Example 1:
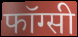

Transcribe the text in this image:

फॉग्सी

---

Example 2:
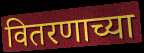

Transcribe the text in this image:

वितरणाच्या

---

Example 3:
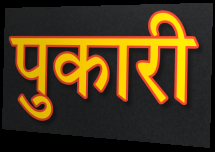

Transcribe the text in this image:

पुकारी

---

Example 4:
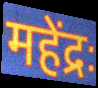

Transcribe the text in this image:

महेंद्रः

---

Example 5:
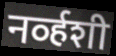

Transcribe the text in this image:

नर्व्हशी